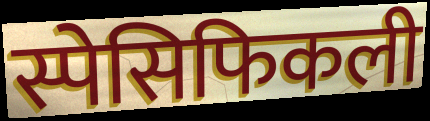
स्पेसिफिकली